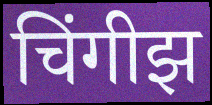
चिंगीझ